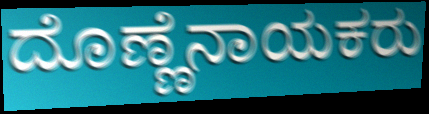
ದೊಣ್ಣೆನಾಯಕರು